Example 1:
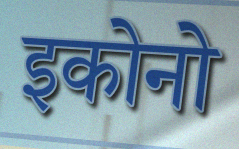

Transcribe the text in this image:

इकोनो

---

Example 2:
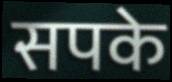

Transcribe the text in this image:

सपके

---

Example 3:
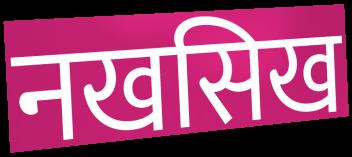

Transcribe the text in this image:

नखसिख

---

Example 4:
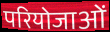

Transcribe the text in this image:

परियोजाओं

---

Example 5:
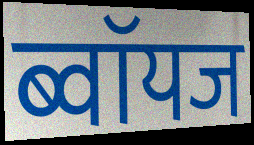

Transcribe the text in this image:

ब्वॉयज